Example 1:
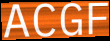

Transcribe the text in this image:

ACGF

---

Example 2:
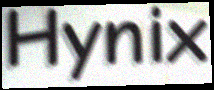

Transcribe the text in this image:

Hynix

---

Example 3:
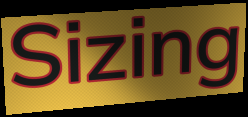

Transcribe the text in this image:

Sizing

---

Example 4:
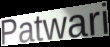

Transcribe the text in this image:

Patwari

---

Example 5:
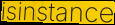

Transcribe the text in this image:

isinstance